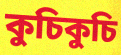
কুচিকুচি